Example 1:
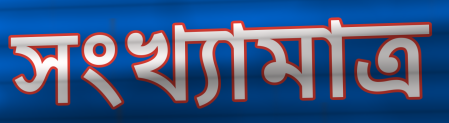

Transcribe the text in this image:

সংখ্যামাত্র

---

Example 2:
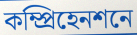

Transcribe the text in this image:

কম্প্রিহেনশনে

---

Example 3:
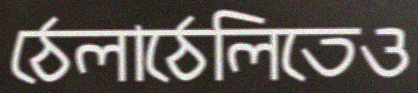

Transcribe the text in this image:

ঠেলাঠেলিতেও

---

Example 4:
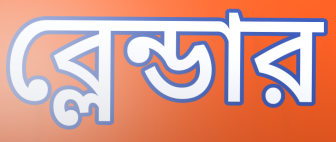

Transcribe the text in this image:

ব্লেন্ডার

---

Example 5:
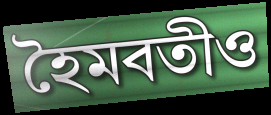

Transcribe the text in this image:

হৈমবতীও